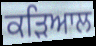
ਕੜਿਆਲ